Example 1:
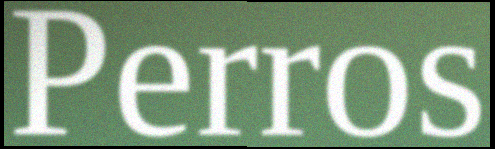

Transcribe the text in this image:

Perros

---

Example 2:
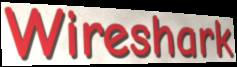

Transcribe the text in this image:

Wireshark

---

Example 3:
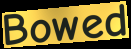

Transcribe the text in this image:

Bowed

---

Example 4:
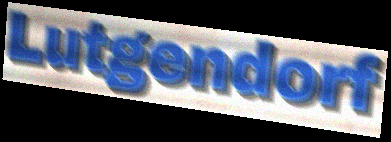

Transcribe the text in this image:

Lutgendorf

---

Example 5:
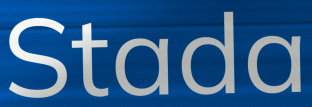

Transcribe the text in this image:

Stada